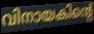
വിനായകിന്റെ